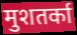
मुशतर्का